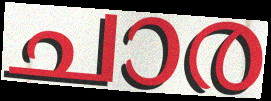
ചാര